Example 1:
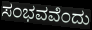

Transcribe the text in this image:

ಸಂಭವವೆಂದು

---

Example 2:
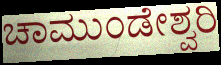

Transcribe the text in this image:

ಚಾಮುಂಡೇಶ್ವರಿ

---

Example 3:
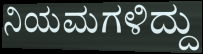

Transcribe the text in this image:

ನಿಯಮಗಳಿದ್ದು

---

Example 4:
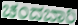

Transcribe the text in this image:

ಚಂದಬಾರಿ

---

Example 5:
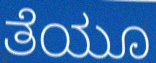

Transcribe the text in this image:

ತೆಯೂ